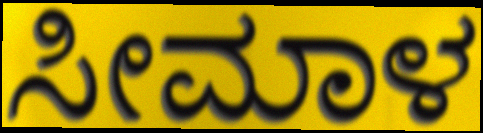
ಸೀಮಾಳ